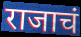
राजाचं